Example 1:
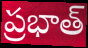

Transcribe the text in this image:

ప్రభాత్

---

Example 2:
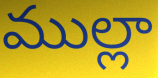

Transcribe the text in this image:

ముల్లా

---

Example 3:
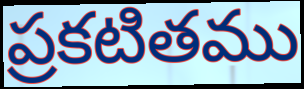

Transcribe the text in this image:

ప్రకటితము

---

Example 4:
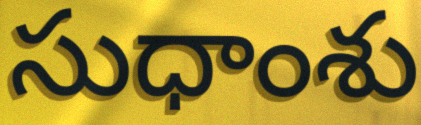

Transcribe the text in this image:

సుధాంశు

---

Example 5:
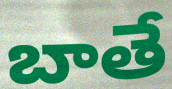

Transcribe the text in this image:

బాతే